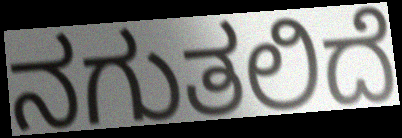
ನಗುತಲಿದೆ